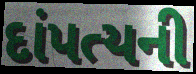
દાંપત્યની